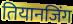
तियानजिंग